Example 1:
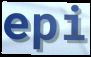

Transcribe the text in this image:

epi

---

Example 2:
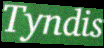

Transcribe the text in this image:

Tyndis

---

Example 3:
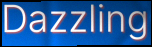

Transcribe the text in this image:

Dazzling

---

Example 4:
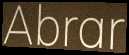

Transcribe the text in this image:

Abrar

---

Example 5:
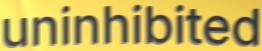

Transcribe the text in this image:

uninhibited